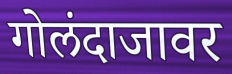
गोलंदाजावर